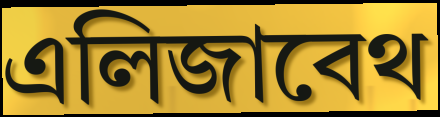
এলিজাবেথ